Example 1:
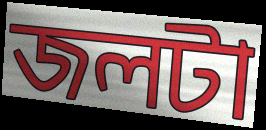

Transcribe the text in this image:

জলটা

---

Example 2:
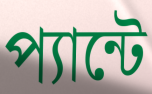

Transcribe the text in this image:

প্যান্টে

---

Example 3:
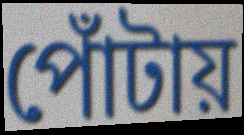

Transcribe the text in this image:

পোঁটায়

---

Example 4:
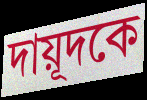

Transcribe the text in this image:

দায়ূদকে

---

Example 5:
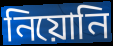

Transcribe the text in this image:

নিয়োনি